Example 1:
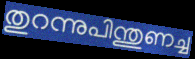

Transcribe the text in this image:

തുറന്നുപിന്തുണച്ച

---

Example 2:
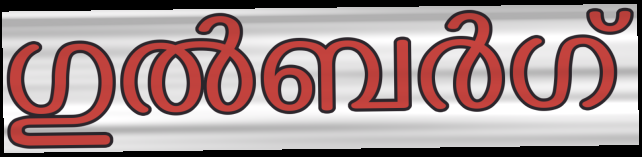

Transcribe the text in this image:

ഗുൽബർഗ്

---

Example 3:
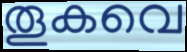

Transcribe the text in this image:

തൂകവെ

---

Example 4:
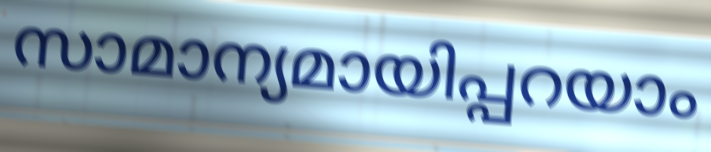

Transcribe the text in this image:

സാമാന്യമായിപ്പറയാം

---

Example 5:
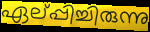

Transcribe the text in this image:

ഏല്പ്പിച്ചിരുന്നു